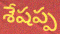
శేషప్ప